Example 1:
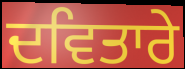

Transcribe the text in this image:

ਦਵਿਤਾਰੇ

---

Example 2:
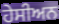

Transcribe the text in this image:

ਹੇਸੀਅਨ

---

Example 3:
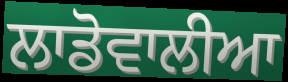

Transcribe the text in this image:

ਲਾਡੋਵਾਲੀਆ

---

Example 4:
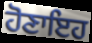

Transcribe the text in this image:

ਹੋਣਾਇਹ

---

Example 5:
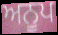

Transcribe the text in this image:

ਅਨੂਪ